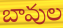
బావుల